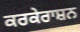
ਕਰਕੇਰਾਸ਼ਨ